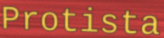
Protista